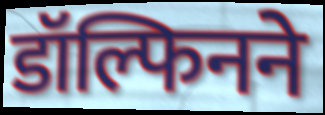
डॉल्फिनने